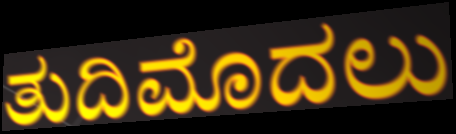
ತುದಿಮೊದಲು